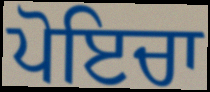
ਪੋਇਚਾ